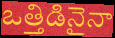
ఒత్తిడినైనా